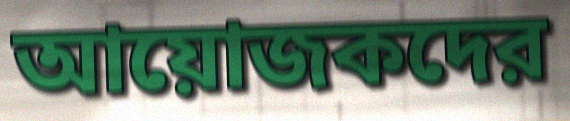
আয়োজকদের